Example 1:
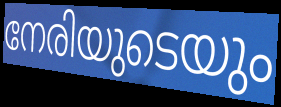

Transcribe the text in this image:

നേരിയുടെയും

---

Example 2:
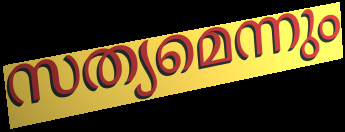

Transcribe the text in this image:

സത്യമെന്നും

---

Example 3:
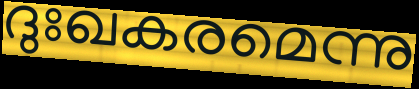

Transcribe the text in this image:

ദുഃഖകരമെന്നു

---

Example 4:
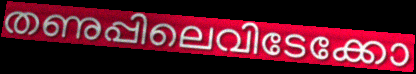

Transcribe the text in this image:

തണുപ്പിലെവിടേക്കോ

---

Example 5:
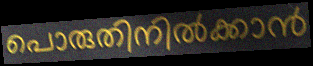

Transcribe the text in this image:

പൊരുതിനിൽക്കാൻ